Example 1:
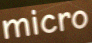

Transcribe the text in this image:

micro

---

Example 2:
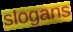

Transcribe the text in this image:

slogans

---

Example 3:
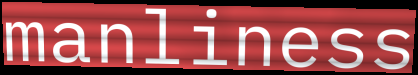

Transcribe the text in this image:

manliness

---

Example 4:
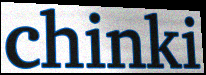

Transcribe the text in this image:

chinki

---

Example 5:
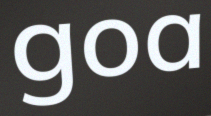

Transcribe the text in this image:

goa